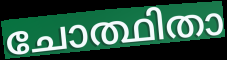
ചോത്ഥിതാ